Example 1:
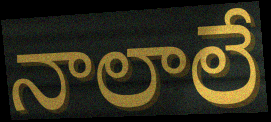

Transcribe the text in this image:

నాలాలే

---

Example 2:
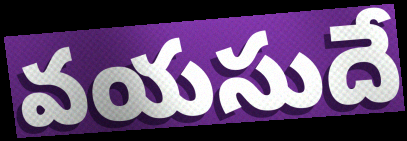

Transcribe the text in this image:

వయసుదే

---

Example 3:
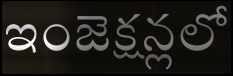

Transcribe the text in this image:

ఇంజెక్షన్లలో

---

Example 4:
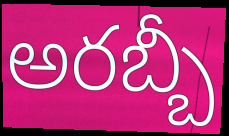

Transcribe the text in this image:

అరబ్బీ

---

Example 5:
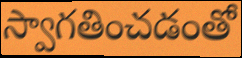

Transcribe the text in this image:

స్వాగతించడంతో